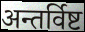
अन्तर्विष्ट